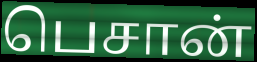
பெசான்